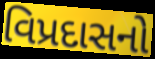
વિપ્રદાસનો